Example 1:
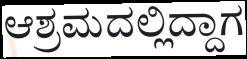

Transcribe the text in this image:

ಆಶ್ರಮದಲ್ಲಿದ್ದಾಗ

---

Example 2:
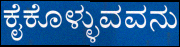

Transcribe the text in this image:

ಕೈಕೊಳ್ಳುವವನು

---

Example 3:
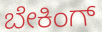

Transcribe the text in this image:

ಬೇಕಿಂಗ್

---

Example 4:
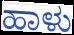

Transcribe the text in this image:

ಹಾಳು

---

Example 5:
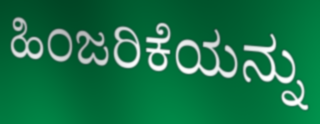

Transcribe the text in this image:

ಹಿಂಜರಿಕೆಯನ್ನು